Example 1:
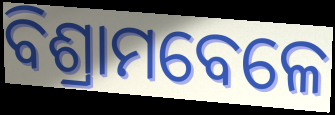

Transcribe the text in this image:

ବିଶ୍ରାମବେଳେ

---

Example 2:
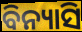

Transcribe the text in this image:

ବିନ୍ୟାସି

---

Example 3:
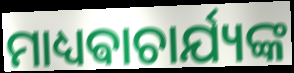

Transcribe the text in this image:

ମାଧ୍ୟଵାଚାର୍ଯ୍ୟଙ୍କ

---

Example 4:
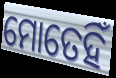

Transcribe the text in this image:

ମୋତେହିଁ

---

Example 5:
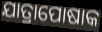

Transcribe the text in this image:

ଯାତ୍ରାପୋଷାକ